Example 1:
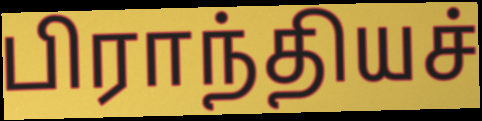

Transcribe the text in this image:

பிராந்தியச்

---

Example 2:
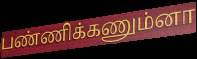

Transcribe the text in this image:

பண்ணிக்கணும்னா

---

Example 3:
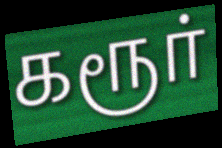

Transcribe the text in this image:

கரூர்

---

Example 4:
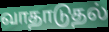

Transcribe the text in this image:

வாதாடுதல்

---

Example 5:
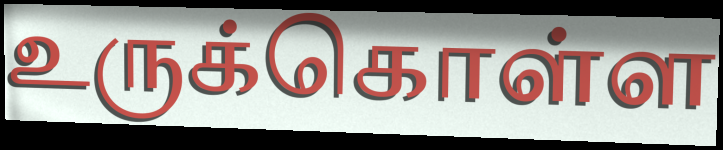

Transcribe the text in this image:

உருக்கொள்ள